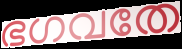
ഭഗവതേ